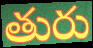
తురు